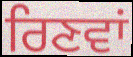
ਰਿਣਵਾਂ